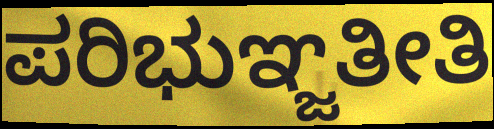
ಪರಿಭುಞ್ಜತೀತಿ